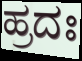
ಹ್ರದಃ